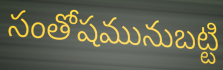
సంతోషమునుబట్టి